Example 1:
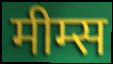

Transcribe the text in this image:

मीम्‍स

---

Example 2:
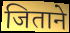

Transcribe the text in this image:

जिताने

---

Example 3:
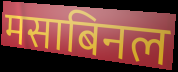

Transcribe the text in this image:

मसाबिनल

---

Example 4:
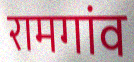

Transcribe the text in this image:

रामगांव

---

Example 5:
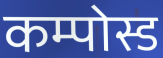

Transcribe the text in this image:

कम्पोस्ड